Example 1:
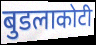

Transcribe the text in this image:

बुडलाकोटी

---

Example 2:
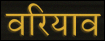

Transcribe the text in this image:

वरियाव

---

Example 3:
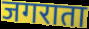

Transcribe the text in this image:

जगराता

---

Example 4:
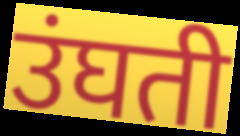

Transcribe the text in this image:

उंघती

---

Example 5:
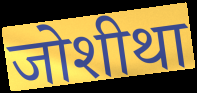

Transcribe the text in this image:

जोशीथा